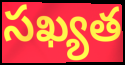
సఖ్యత